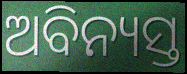
ଅବିନ୍ୟସ୍ତ